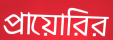
প্রায়োরির